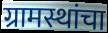
ग्रामस्थांचा